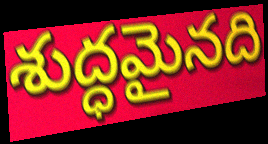
శుద్ధమైనది